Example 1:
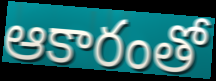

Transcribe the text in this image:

ఆకారంతో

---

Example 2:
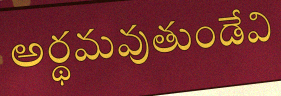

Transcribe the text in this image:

అర్థమవుతుండేవి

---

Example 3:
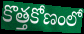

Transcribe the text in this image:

కొత్తకోణంలో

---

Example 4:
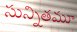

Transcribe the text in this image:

సున్నితమూ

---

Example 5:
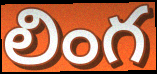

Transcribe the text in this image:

లింగ